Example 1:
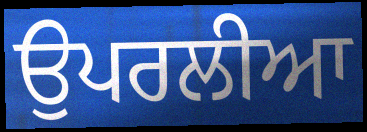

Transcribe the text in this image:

ਉਪਰਲੀਆ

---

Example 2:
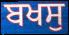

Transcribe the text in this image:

ਬਖਸੁ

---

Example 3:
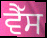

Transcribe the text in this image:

ਵੈੱਸ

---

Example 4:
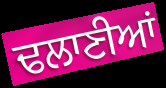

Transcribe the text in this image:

ਢਲਾਣੀਆਂ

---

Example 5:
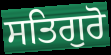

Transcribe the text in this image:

ਸਤਿਗੁਰੋ